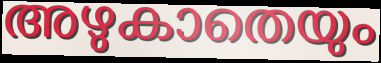
അഴുകാതെയും